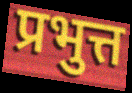
प्रभुत्त